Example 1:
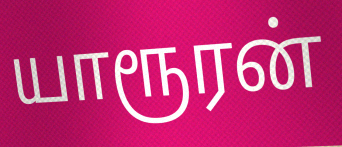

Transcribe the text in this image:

யாரூரன்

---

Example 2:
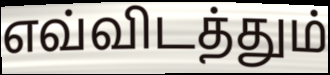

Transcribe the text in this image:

எவ்விடத்தும்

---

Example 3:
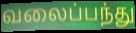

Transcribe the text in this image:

வலைப்பந்து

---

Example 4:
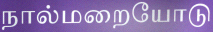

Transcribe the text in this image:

நால்மறையோடு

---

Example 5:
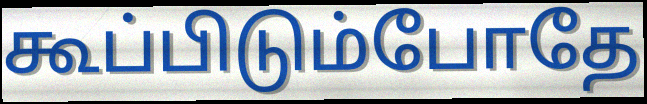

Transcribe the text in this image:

கூப்பிடும்போதே